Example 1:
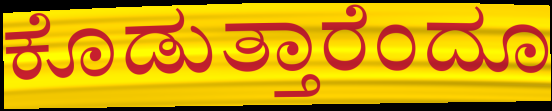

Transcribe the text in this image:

ಕೊಡುತ್ತಾರೆಂದೂ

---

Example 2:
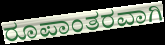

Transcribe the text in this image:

ರೂಪಾಂತರವಾಗಿ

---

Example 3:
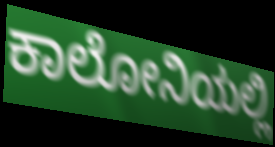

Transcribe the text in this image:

ಕಾಲೋನಿಯಲ್ಲಿ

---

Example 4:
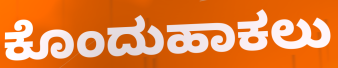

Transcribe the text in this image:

ಕೊಂದುಹಾಕಲು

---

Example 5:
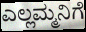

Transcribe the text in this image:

ಎಲ್ಲಮ್ಮನಿಗೆ